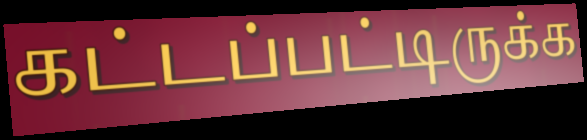
கட்டப்பட்டிருக்க